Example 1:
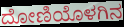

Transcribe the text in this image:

ದೋಣಿಯೊಳಗಿನ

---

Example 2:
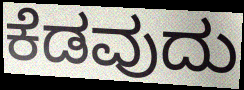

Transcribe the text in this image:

ಕೆಡವುದು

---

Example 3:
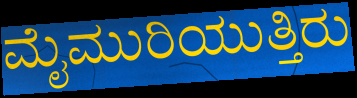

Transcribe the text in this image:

ಮೈಮುರಿಯುತ್ತಿರು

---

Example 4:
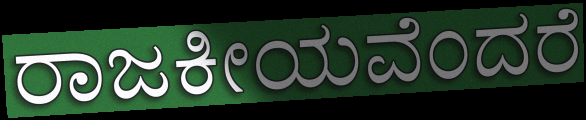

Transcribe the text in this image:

ರಾಜಕೀಯವೆಂದರೆ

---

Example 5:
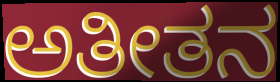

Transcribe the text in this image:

ಅತೀತನ